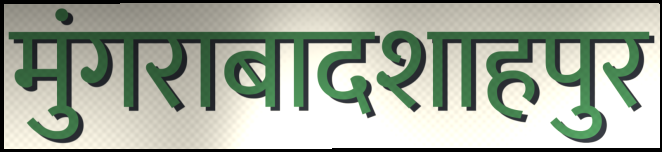
मुंगराबादशाहपुर